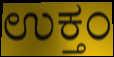
ಉಕ್ತಂ